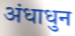
अंधाधुन